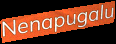
Nenapugalu